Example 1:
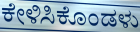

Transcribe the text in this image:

ಕೇಳಿಸಿಕೊಂಡಳು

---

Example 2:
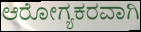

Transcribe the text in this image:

ಆರೋಗ್ಯಕರವಾಗಿ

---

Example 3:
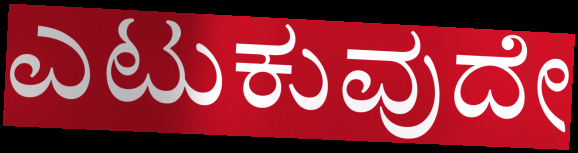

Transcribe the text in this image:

ಎಟುಕುವುದೇ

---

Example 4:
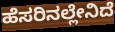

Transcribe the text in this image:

ಹೆಸರಿನಲ್ಲೇನಿದೆ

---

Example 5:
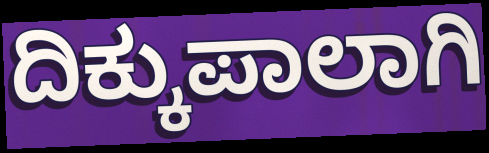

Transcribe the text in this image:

ದಿಕ್ಕುಪಾಲಾಗಿ